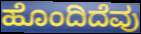
ಹೊಂದಿದೆವು